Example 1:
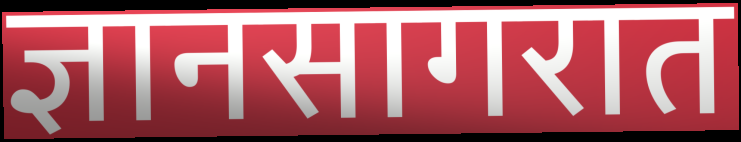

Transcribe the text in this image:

ज्ञानसागरात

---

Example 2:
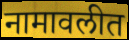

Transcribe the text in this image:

नामावलीत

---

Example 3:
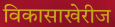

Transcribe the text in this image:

विकासाखेरीज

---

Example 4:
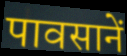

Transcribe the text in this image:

पावसानें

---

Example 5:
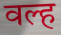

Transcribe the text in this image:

वल्ह